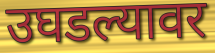
उघडल्यावर